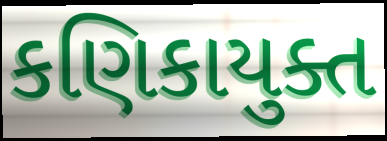
કણિકાયુક્ત